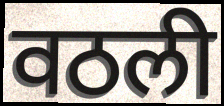
वठली